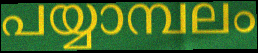
പയ്യാമ്പലം